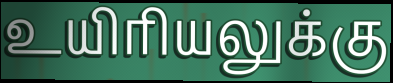
உயிரியலுக்கு